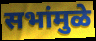
सभांमुळे